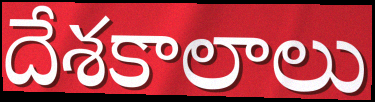
దేశకాలాలు